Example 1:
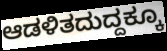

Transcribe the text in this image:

ಆಡಳಿತದುದ್ದಕ್ಕೂ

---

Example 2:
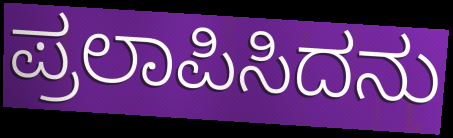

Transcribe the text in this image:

ಪ್ರಲಾಪಿಸಿದನು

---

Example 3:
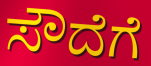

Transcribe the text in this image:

ಸೌದೆಗೆ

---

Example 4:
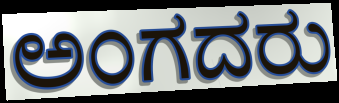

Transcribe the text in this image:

ಅಂಗದರು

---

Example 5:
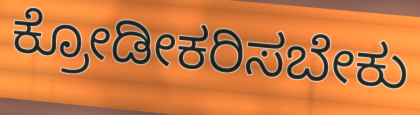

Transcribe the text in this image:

ಕ್ರೋಡೀಕರಿಸಬೇಕು